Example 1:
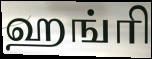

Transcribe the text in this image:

ஹங்ரி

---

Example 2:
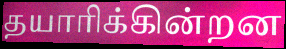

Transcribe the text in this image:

தயாரிக்கின்றன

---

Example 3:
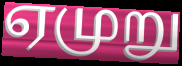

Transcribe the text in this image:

ஏமுறு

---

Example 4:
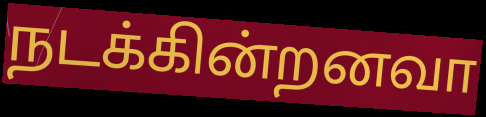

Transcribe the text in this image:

நடக்கின்றனவா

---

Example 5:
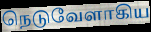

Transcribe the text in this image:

நெடுவேளாகிய